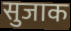
सुजाक